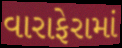
વારાફેરામાં